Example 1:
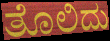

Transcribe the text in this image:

ತೊಲಿದು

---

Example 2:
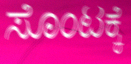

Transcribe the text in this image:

ಸೊಂಟಕ್ಕೆ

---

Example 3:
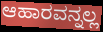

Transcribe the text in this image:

ಆಹಾರವನ್ನಲ್ಲ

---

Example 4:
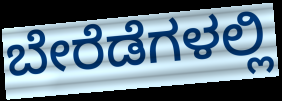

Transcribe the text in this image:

ಬೇರೆಡೆಗಳಲ್ಲಿ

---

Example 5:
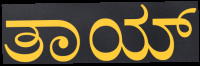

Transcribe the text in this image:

ತಾಯ್